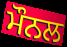
ਮੌਨਲ